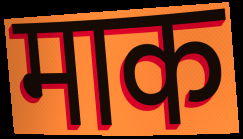
माक